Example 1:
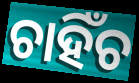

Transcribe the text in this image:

ଚାହିଁଚ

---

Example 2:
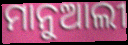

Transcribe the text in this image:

ମାନୁଆଲୀ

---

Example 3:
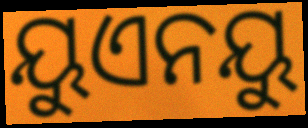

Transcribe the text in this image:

ୟୁଏନୟୁ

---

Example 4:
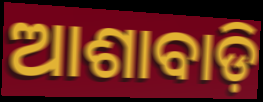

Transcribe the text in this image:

ଆଶାବାଡ଼ି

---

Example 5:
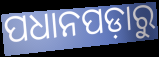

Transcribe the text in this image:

ପଧାନପଡ଼ାରୁ